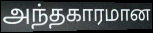
அந்தகாரமான